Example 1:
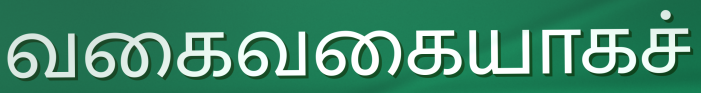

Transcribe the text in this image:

வகைவகையாகச்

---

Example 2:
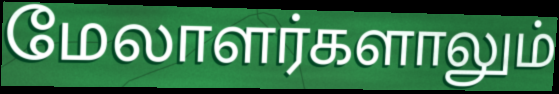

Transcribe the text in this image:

மேலாளர்களாலும்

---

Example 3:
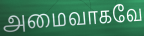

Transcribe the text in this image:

அமைவாகவே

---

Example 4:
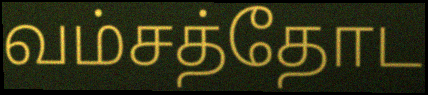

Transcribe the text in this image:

வம்சத்தோட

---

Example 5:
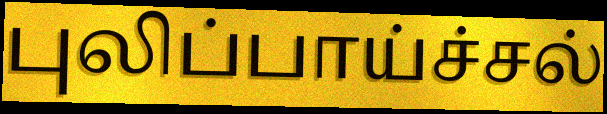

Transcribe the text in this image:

புலிப்பாய்ச்சல்